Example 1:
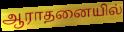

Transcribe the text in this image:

ஆராதனையில்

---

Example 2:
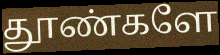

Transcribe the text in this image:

தூண்களே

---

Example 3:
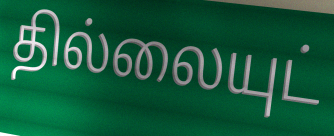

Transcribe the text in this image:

தில்லையுட்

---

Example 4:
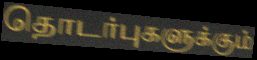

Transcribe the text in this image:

தொடர்புகளுக்கும்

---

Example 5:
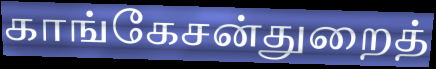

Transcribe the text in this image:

காங்கேசன்துறைத்